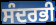
ਸੰਦਰਭੀ